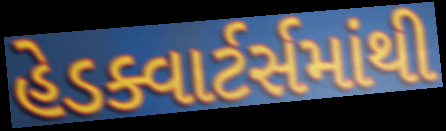
હેડક્વાર્ટર્સમાંથી